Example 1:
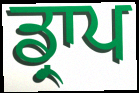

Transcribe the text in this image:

ਡ੍ਰਾਪ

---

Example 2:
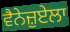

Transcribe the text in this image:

ਵੈਨੇਜ਼ੁਏਲਾ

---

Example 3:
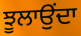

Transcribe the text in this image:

ਝੂਲਾਉਂਦਾ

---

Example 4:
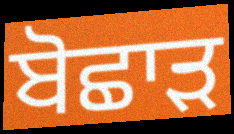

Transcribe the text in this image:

ਬੋਛਾੜ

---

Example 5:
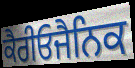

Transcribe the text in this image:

ਕੈਰੀਓਜੈਨਿਕ